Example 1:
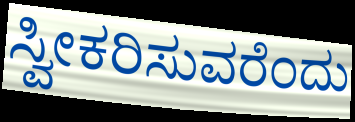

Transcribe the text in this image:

ಸ್ವೀಕರಿಸುವರೆಂದು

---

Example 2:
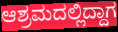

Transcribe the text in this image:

ಆಶ್ರಮದಲ್ಲಿದ್ದಾಗ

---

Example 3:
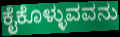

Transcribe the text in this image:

ಕೈಕೊಳ್ಳುವವನು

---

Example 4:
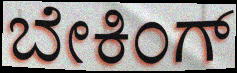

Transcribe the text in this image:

ಬೇಕಿಂಗ್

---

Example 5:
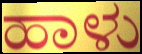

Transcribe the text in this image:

ಹಾಳು